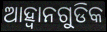
ଆହ୍ୱାନଗୁଡିକ